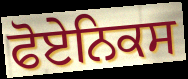
ਫੋਏਨਿਕਸ